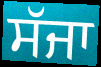
ਸੱਜਾ